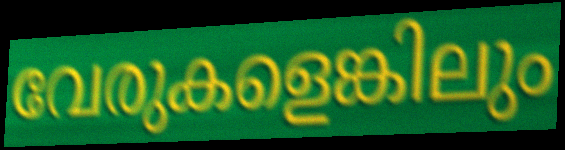
വേരുകളെങ്കിലും